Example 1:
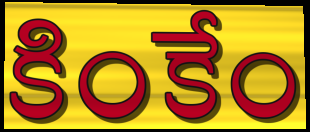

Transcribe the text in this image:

కింకేం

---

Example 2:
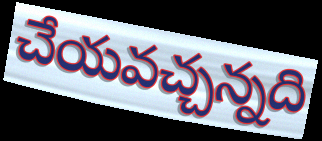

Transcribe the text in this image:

చేయవచ్చన్నది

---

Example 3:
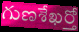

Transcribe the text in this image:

గుణశేఖర్తో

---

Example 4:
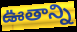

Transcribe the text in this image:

ఊతాన్ని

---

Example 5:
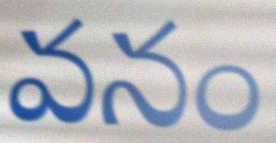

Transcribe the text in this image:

వనం